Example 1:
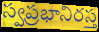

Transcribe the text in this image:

స్వప్రభానిరస్త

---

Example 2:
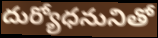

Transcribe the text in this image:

దుర్యోధనునితో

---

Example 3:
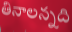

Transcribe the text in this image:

తినాలన్నది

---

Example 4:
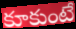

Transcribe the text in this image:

కూకుంటే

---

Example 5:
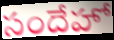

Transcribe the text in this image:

సందేహో